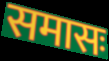
समासः